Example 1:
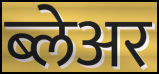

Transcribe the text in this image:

ब्लेअर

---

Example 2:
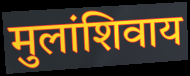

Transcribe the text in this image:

मुलांशिवाय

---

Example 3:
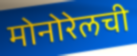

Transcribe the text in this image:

मोनोरेलची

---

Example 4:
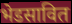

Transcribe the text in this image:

भेडसावित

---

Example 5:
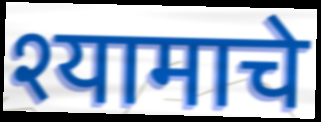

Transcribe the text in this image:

श्यामाचे